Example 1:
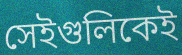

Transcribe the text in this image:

সেইগুলিকেই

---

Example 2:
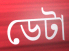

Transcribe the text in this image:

ডেটা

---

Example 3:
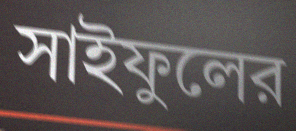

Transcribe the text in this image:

সাইফুলের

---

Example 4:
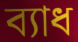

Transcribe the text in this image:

ব্যাধ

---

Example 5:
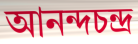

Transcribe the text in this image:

আনন্দচন্দ্র